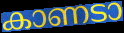
കാണടാ